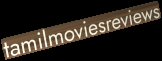
tamilmoviesreviews